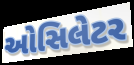
ઓસિલેટર